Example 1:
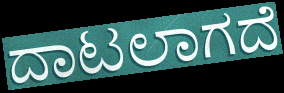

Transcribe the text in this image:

ದಾಟಲಾಗದೆ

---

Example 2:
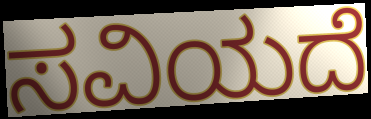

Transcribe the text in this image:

ಸವಿಯದೆ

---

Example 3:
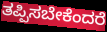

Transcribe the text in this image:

ತಪ್ಪಿಸಬೇಕೆಂದರೆ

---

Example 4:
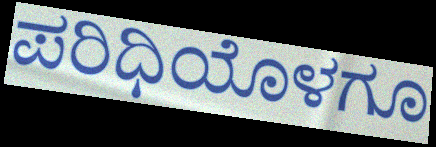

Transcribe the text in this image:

ಪರಿಧಿಯೊಳಗೂ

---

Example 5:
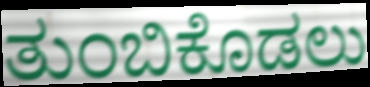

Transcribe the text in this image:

ತುಂಬಿಕೊಡಲು